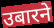
उबारने